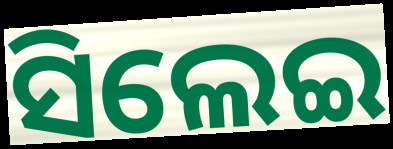
ସିଲେଇ